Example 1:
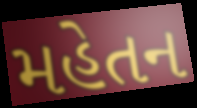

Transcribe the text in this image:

મહેતન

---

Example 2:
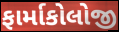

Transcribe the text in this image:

ફાર્માકોલોજી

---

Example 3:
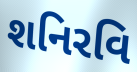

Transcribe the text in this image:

શનિરવિ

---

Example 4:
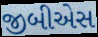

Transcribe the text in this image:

જીબીએસ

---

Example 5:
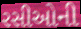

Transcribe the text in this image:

રસીઓની